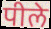
पीले